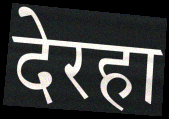
देरहा